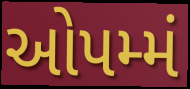
ઓપમ્મં